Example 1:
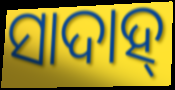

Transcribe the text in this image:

ସାଦାହ୍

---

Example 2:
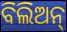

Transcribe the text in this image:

ବିଲିଅନ୍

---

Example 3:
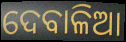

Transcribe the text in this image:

ଦେବାଳିଆ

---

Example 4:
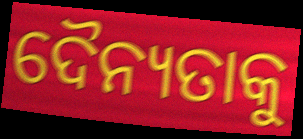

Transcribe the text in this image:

ଦୈନ୍ୟତାକୁ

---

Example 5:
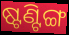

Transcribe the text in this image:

ଷ୍ଟଣ୍ଟିଙ୍ଗ